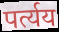
पर्त्यय